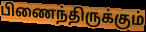
பிணைந்திருக்கும்